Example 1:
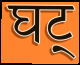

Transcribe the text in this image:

घट्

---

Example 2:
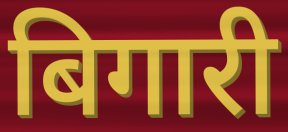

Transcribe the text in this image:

बिगारी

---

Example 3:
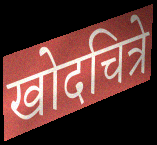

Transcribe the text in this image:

खोदचित्रे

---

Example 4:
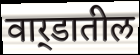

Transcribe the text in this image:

वार्डातील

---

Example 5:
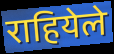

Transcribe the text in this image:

राहियेले